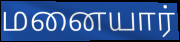
மனையார்